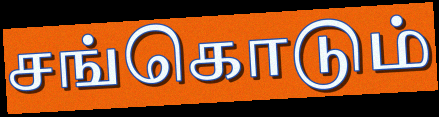
சங்கொடும்